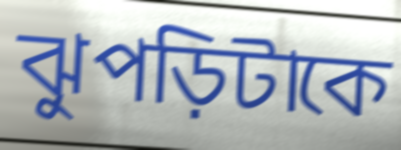
ঝুপড়িটাকে